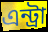
এন্ট্রা